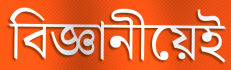
বিজ্ঞানীয়েই